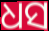
ଧସ